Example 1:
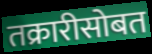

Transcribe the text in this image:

तक्रारीसोबत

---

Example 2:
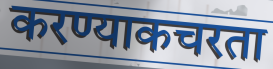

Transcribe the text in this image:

करण्याकचरता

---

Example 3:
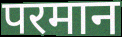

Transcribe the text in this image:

परमान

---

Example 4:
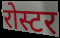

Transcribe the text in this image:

रोस्टर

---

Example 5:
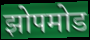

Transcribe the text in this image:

झोपमोड